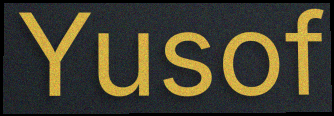
Yusof